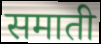
समाती